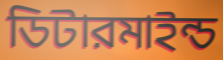
ডিটারমাইন্ড